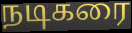
நடிகரை